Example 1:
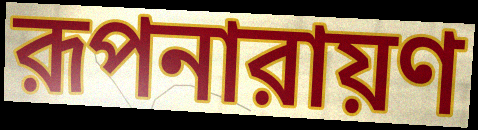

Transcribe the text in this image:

রূপনারায়ণ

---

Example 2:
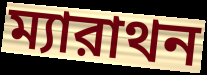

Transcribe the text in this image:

ম্যারাথন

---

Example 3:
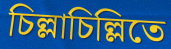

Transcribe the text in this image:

চিল্লাচিল্লিতে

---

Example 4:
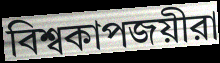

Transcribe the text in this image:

বিশ্বকাপজয়ীরা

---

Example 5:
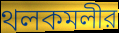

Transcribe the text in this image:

থলকমলীর